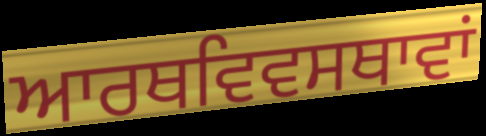
ਆਰਥਵਿਵਸਥਾਵਾਂ